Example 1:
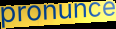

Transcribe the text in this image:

pronunce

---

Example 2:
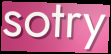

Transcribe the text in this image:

sotry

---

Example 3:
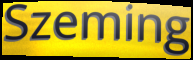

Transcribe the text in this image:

Szeming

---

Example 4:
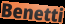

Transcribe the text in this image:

Benetti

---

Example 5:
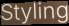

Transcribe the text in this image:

Styling